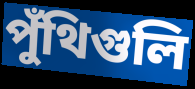
পুঁথিগুলি